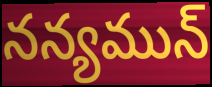
నన్యమున్